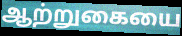
ஆற்றுகையை